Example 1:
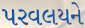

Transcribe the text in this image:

પરવલયને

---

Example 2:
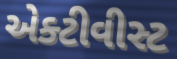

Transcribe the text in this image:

એક્ટીવીસ્ટ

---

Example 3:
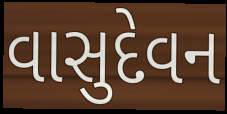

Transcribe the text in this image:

વાસુદેવન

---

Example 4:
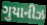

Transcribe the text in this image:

ગુયાનીઝ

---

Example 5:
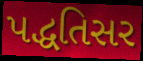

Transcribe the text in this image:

પદ્ધતિસર